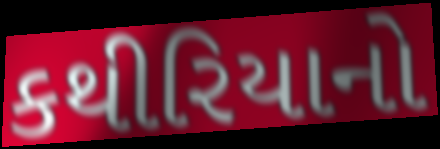
કથીરિયાનો